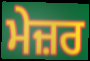
ਮੇਜ਼ਰ